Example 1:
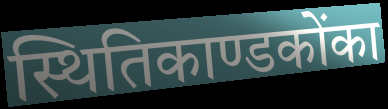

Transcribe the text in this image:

स्थितिकाण्डकोंका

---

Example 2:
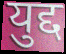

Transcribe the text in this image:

युद्द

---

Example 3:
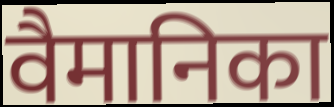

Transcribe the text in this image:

वैमानिका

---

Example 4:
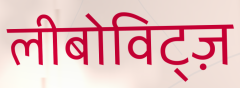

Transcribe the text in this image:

लीबोविट्ज़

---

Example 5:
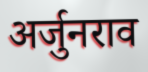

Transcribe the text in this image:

अर्जुनराव